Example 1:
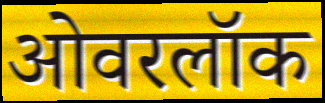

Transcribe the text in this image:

ओवरलॉक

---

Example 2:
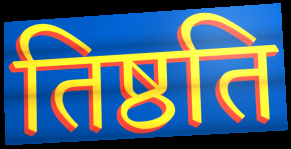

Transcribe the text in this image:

तिष्ठति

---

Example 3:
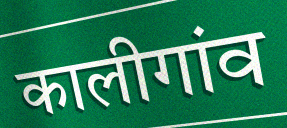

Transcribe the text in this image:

कालीगांव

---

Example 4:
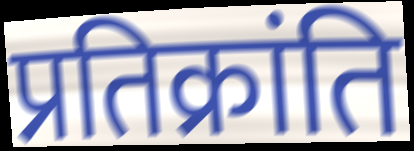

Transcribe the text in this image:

प्रतिक्रांति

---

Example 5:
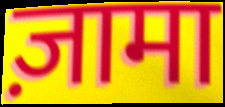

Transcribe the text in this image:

ज़ामा